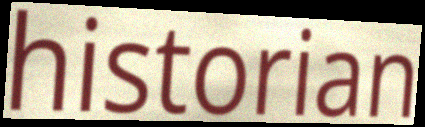
historian